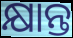
କ୍ଷାନ୍ତ